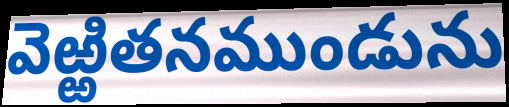
వెఱ్ఱితనముండును